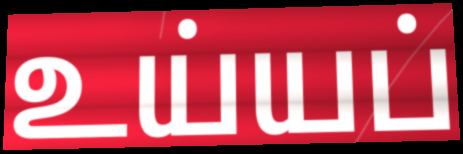
உய்யப்